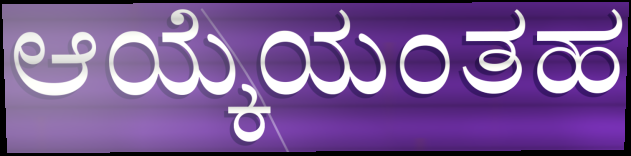
ಆಯ್ಕೆಯಂತಹ